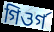
গিওৰ্গ